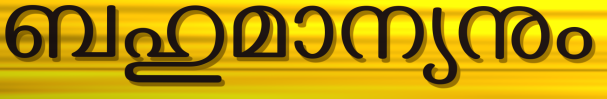
ബഹുമാന്യനും